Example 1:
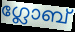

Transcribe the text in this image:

ഗ്ലോബ്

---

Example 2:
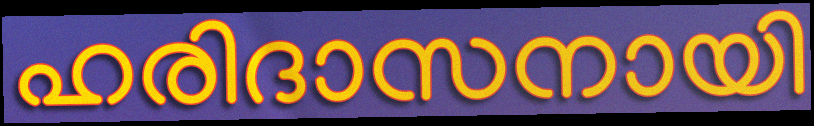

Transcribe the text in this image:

ഹരിദാസനായി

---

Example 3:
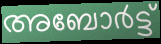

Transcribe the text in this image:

അബോർട്ട്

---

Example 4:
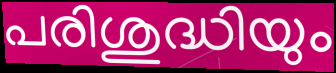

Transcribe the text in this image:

പരിശുദ്ധിയും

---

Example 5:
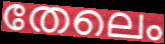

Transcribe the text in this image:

തേലെം